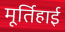
मूर्तिहाई